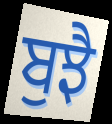
ਬੁਝੈ